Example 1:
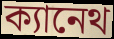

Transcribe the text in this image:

ক্যানেথ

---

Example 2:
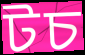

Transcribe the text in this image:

টচ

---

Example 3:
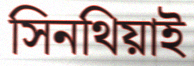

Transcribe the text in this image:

সিনথিয়াই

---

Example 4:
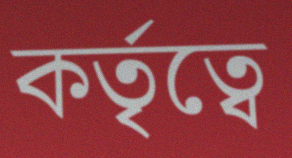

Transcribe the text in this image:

কর্তৃত্বে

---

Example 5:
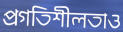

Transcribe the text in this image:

প্রগতিশীলতাও